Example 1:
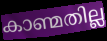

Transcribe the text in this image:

കാണ്മതില്ല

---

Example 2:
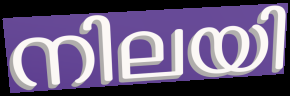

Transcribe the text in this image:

നിലയി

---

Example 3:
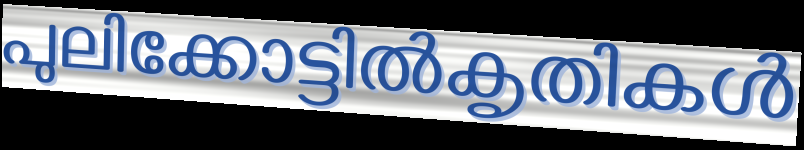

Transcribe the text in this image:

പുലിക്കോട്ടിൽകൃതികൾ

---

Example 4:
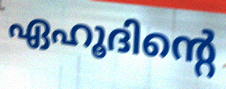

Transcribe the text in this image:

ഏഹൂദിന്റെ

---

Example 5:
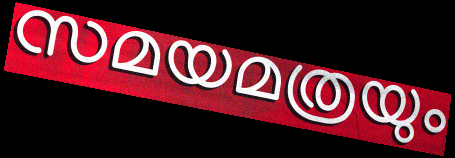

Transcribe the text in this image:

സമയമത്രയും